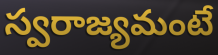
స్వరాజ్యమంటే